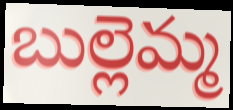
బుల్లెమ్మ